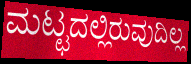
ಮಟ್ಟದಲ್ಲಿರುವುದಿಲ್ಲ